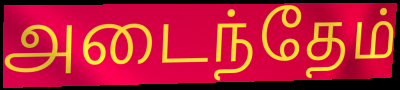
அடைந்தேம்